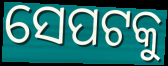
ସେପଟକୁ